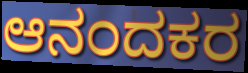
ಆನಂದಕರ